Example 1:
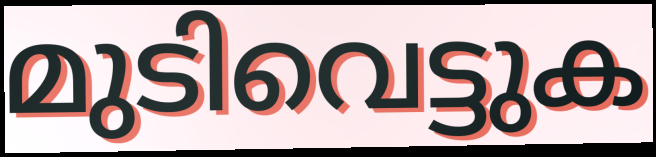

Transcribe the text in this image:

മുടിവെട്ടുക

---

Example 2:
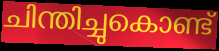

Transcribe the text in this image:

ചിന്തിച്ചുകൊണ്ട്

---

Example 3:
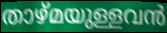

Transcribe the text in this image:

താഴ്മയുള്ളവൻ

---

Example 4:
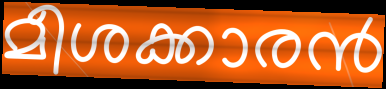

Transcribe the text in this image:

മീശക്കാരൻ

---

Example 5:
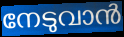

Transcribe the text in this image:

നേടുവാൻ